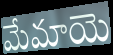
మేమాయె